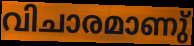
വിചാരമാണു്